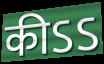
कीऽऽ